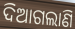
ଦିଆଗଲାଣି